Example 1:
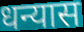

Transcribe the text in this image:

धन्यास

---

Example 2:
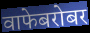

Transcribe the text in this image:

वाफेबरोबर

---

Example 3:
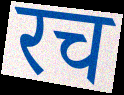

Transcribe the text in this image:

रच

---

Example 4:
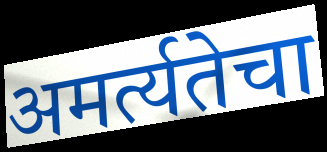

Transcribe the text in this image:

अमर्त्यतेचा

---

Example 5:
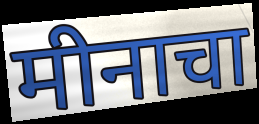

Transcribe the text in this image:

मीनाचा